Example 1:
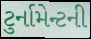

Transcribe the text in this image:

ટુર્નામેન્ટની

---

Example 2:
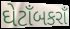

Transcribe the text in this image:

ઘેટાઁબકરાઁ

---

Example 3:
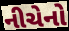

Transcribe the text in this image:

નીચેનો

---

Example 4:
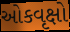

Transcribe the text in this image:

ઓકવૃક્ષો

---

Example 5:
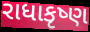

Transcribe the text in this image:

રાધાકૃષ્ણ